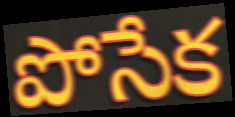
పోసేక